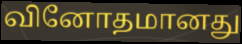
வினோதமானது